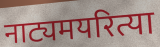
नाट्यमयरित्या